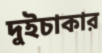
দুইচাকার